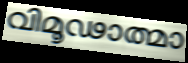
വിമൂഢാത്മാ